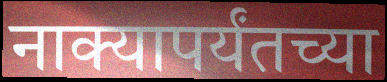
नाक्यापर्यंतच्या